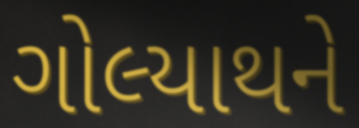
ગોલ્યાથને